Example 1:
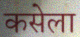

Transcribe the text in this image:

कसेला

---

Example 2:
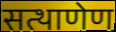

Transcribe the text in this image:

सत्थाणेण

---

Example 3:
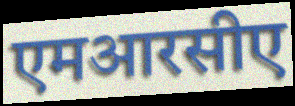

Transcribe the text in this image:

एमआरसीए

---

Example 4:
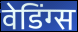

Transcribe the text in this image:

वेडिंग्स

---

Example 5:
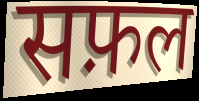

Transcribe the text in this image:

सफ़ल